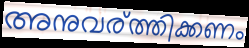
അനുവര്ത്തിക്കണം